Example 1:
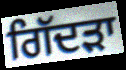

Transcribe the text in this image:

ਗਿੱਦੜਾ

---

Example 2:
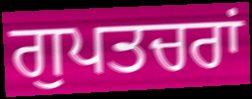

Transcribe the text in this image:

ਗੁਪਤਚਰਾਂ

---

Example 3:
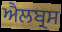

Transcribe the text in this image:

ਐਲਬ੍ਰਸ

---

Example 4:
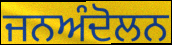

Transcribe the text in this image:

ਜਨਅੰਦੋਲਨ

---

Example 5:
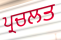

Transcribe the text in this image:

ਪ੍ਰਚਲਤ